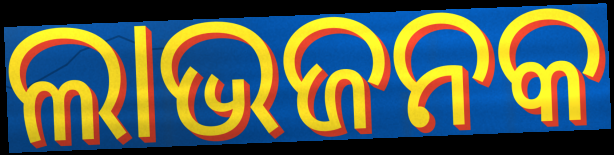
ଲାଭଜନକ